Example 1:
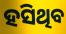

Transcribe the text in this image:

ହସିଥିବ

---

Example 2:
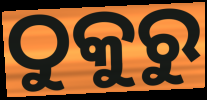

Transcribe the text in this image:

ଠୁକୁରୁ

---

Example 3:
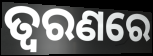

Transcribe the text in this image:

ତ୍ଵରଣରେ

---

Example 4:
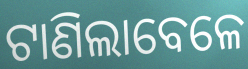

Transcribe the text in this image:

ଟାଣିଲାବେଳେ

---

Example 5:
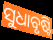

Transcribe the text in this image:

ସୁଧାବୃଷ୍ଟି